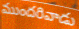
ముందరివాడు